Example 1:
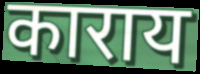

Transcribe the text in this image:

काराय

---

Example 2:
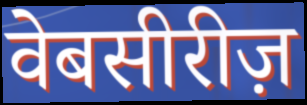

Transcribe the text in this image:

वेबसीरीज़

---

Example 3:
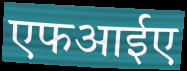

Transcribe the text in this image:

एफआईए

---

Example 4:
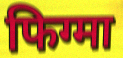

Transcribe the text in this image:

फिग्मा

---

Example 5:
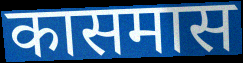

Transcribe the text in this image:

कासमास